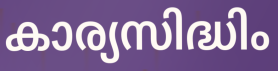
കാര്യസിദ്ധിം